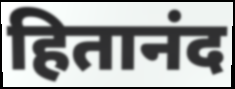
हितानंद